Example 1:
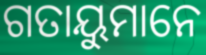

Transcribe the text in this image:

ଗତାୟୁମାନେ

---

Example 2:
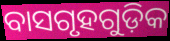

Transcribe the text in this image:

ବାସଗୃହଗୁଡ଼ିକ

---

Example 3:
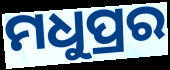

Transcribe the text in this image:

ମଧୁପ୍ରର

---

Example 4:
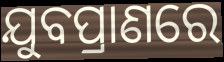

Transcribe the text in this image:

ଯୁବପ୍ରାଣରେ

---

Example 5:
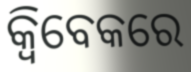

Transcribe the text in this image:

କ୍ୱିବେକରେ